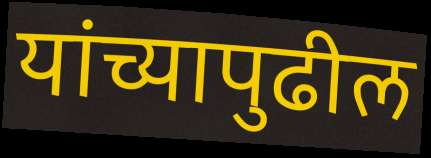
यांच्यापुढील